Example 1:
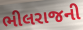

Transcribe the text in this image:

ભીલરાજની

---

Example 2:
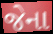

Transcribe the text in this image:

જેના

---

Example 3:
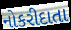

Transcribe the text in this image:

નોકરીદાતા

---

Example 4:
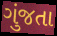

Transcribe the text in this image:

ગુંજતા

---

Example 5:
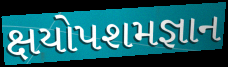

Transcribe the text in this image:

ક્ષયોપશમજ્ઞાન